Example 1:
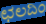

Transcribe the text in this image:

ಛಲದಿಂ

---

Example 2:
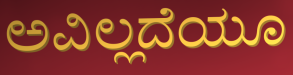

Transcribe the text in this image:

ಅವಿಲ್ಲದೆಯೂ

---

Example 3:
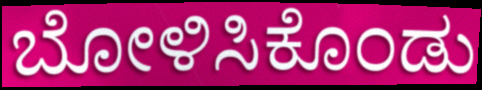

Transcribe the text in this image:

ಬೋಳಿಸಿಕೊಂಡು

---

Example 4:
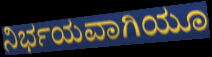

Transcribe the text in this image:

ನಿರ್ಭಯವಾಗಿಯೂ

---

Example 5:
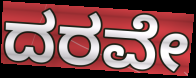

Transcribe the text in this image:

ದರವೇ